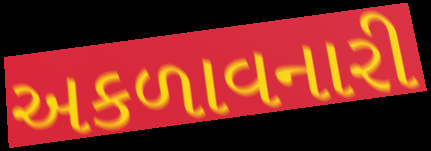
અકળાવનારી